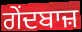
ਗੇਂਦਬਾਜ਼